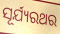
ସୂର୍ଯ୍ୟରଥର